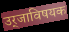
उर्जाविषयक